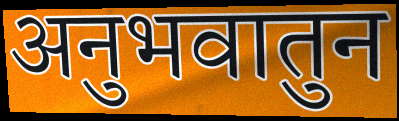
अनुभवातुन